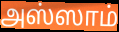
அஸ்ஸாம்